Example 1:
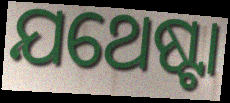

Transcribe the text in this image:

ଯଥେଷ୍ଟା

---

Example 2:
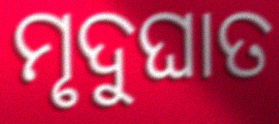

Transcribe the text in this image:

ମୃଦୁଘାତ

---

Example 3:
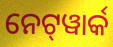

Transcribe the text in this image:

ନେଟ୍‌ୱାର୍କ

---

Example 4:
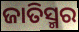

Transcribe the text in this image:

ଜାତିସ୍ମର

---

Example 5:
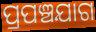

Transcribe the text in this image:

ପ୍ରପଞ୍ଚଯାଗ